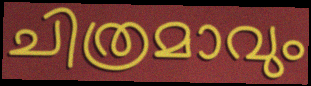
ചിത്രമാവും